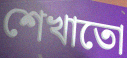
শেখাতো